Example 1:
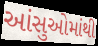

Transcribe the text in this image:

આંસુઓમાંથી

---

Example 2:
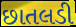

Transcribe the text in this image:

છાતલડી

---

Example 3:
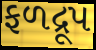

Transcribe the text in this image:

ફળદ્રૂપ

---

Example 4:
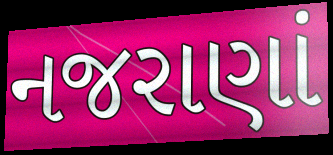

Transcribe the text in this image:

નજરાણાં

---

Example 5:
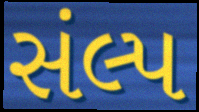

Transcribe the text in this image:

સંલ્પ